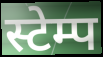
स्टेम्प